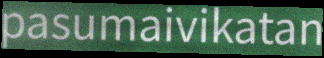
pasumaivikatan